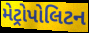
મેટ્રોપોલિટન